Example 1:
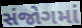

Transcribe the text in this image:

સંજોગમાં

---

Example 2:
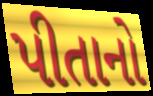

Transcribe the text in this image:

પીતાનો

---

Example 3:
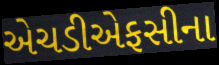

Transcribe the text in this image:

એચડીએફસીના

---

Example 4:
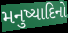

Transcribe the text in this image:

મનુષ્યાદિનો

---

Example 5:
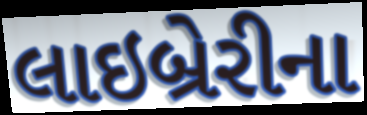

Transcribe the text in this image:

લાઇબ્રેરીના